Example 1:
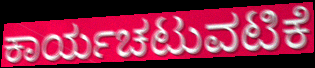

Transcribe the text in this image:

ಕಾರ್ಯಚಟುವಟಿಕೆ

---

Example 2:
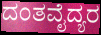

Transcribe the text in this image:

ದಂತವೈದ್ಯರ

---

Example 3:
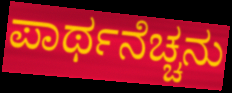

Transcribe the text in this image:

ಪಾರ್ಥನೆಚ್ಚನು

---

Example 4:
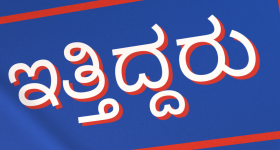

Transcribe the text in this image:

ಇತ್ತಿದ್ದರು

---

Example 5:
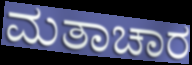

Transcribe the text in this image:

ಮತಾಚಾರ